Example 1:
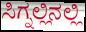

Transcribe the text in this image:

ಸಿಗ್ನಲ್ಲಿನಲ್ಲಿ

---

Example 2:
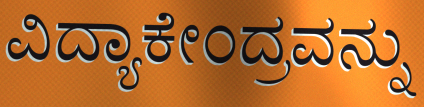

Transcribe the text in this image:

ವಿದ್ಯಾಕೇಂದ್ರವನ್ನು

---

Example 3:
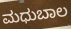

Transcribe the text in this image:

ಮಧುಬಾಲ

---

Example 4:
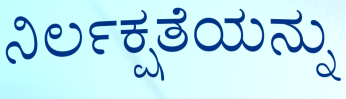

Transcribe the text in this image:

ನಿರ್ಲಕ್ಷತೆಯನ್ನು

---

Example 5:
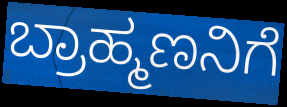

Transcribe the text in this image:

ಬ್ರಾಹ್ಮಣನಿಗೆ